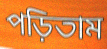
পড়িতাম